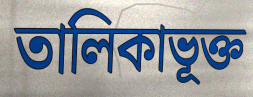
তালিকাভূক্ত